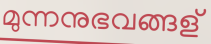
മുന്നനുഭവങ്ങള്